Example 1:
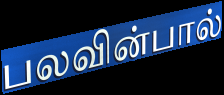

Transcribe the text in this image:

பலவின்பால்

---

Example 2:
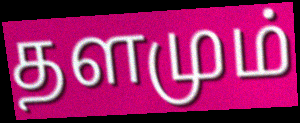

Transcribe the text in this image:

தளமும்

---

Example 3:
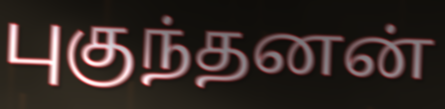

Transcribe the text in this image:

புகுந்தனன்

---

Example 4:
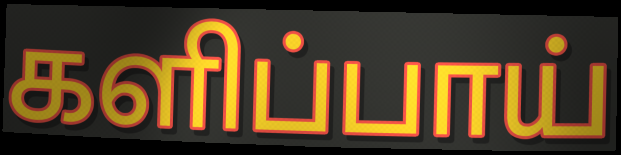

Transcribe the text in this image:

களிப்பாய்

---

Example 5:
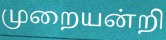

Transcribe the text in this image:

முறையன்றி